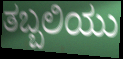
ತಬ್ಬಲಿಯು